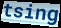
tsing